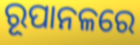
ରୂପାନଳରେ